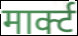
मार्क्ट